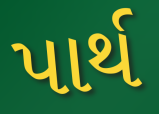
પાર્થ